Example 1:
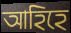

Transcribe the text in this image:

আহিহে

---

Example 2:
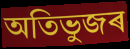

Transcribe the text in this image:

অতিভুজৰ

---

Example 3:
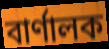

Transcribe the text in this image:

বাৰ্ণালক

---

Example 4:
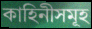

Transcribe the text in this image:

কাহিনীসমূহ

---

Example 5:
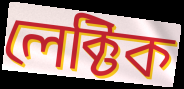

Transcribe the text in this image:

লেক্টিক